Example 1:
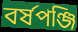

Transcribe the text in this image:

বর্ষপঞ্জি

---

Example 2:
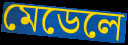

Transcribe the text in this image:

মেডেলে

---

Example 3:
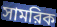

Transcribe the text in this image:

সামরিক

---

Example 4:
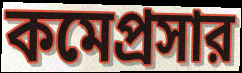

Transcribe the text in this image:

কমেপ্রসার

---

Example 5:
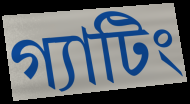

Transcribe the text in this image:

গ্যাটিং